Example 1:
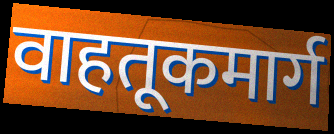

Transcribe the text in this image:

वाहतूकमार्ग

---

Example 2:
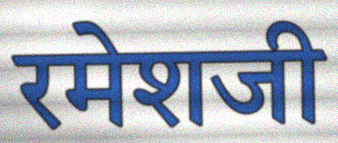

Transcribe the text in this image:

रमेशजी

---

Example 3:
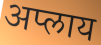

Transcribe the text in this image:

अप्लाय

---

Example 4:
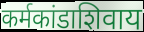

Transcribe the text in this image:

कर्मकांडाशिवाय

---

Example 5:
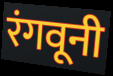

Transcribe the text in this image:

रंगवूनी